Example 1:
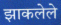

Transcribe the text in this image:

झाकलेले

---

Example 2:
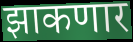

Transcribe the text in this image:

झाकणार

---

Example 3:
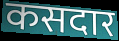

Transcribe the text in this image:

कसदार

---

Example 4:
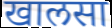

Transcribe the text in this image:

खालसा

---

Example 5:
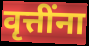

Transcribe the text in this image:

वृत्तींना